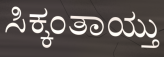
ಸಿಕ್ಕಂತಾಯ್ತು